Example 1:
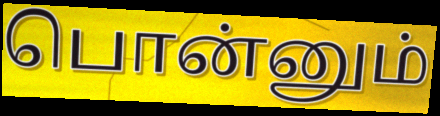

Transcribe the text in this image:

பொன்னும்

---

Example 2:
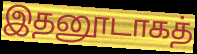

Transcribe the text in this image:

இதனூடாகத்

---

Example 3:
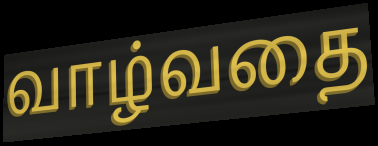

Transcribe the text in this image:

வாழ்வதை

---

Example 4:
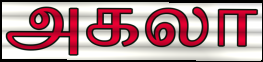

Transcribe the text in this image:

அகலா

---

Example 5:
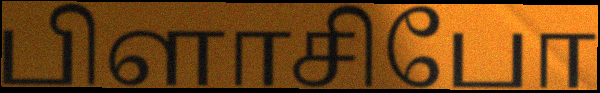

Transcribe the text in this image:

பிளாசிபோ